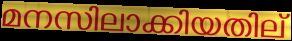
മനസിലാക്കിയതില്